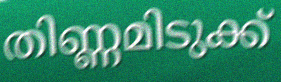
തിണ്ണമിടുക്ക്